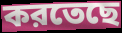
করতেছে